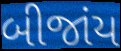
બીજાંય